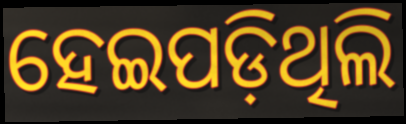
ହେଇପଡ଼ିଥିଲି